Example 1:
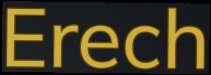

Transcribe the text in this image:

Erech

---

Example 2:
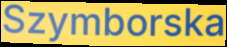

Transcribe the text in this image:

Szymborska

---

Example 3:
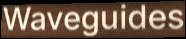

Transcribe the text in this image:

Waveguides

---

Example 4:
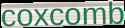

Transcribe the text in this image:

coxcomb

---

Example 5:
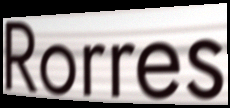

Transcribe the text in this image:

Rorres